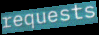
requests